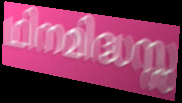
ഥിനമിദ്ധസ്സ